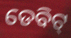
ଡେବିଟ୍